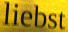
liebst